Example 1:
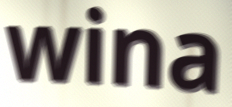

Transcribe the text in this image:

wina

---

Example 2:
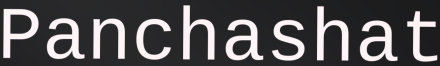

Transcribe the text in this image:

Panchashat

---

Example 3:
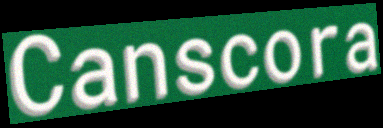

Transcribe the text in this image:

Canscora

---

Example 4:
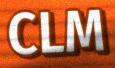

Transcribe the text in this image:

CLM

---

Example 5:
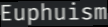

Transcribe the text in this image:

Euphuism